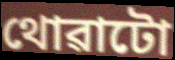
থোৱাটো